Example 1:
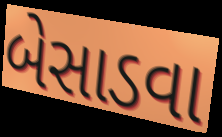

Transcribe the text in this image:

બેસાડવા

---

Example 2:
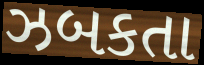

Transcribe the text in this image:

ઝબકતા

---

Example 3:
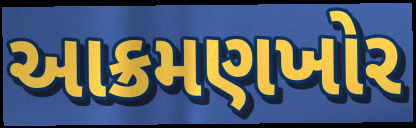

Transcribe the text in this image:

આક્રમણખોર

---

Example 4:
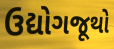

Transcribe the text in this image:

ઉદ્યોગજૂથો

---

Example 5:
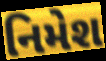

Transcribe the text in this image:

નિમેશ